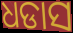
ଧଡାସ